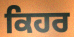
ਕਿਹਰ